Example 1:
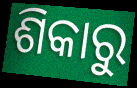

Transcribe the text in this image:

ଶିକାରୁ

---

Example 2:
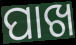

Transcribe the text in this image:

ପାଖ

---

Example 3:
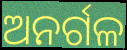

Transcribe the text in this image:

ଅନର୍ଗଳ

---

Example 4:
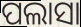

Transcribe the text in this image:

ପଲାସା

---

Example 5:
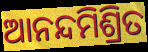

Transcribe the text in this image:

ଆନନ୍ଦମିଶ୍ରିତ